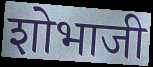
शोभाजी